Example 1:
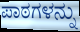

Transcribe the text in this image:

ಪಾಠಗಳನ್ನು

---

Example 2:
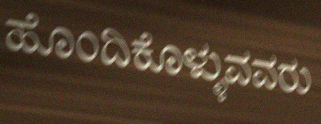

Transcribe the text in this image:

ಹೊಂದಿಕೊಳ್ಳುವವರು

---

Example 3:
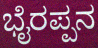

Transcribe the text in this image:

ಭೈರಪ್ಪನ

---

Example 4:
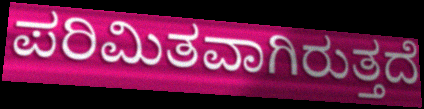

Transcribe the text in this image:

ಪರಿಮಿತವಾಗಿರುತ್ತದೆ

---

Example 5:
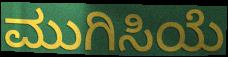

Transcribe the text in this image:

ಮುಗಿಸಿಯೆ